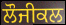
ਲੌਜੀਕਲ